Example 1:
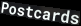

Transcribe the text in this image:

Postcards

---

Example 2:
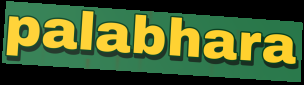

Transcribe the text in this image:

palabhara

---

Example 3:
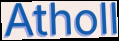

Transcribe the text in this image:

Atholl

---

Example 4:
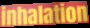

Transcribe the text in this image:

inhalation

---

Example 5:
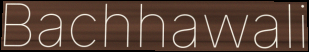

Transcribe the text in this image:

Bachhawali